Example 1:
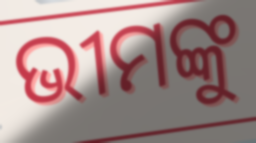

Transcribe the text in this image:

ଭୀମଙ୍କୁ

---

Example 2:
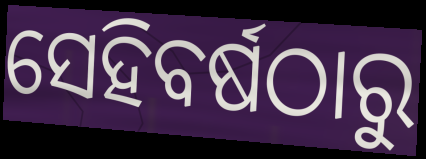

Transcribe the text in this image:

ସେହିବର୍ଷଠାରୁ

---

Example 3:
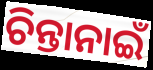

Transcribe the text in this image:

ଚିନ୍ତାନାଇଁ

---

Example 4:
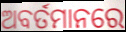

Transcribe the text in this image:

ଅବର୍ତମାନରେ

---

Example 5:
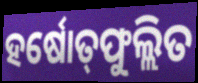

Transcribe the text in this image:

ହର୍ଷୋତ୍‌ଫୁଲ୍ଲିତ